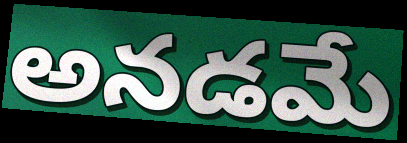
అనడమే